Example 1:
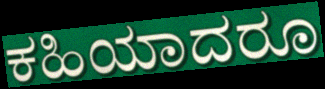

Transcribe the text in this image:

ಕಹಿಯಾದರೂ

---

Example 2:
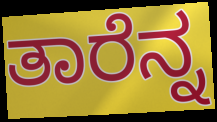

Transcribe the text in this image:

ತಾರೆನ್ನ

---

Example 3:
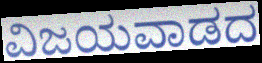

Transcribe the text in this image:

ವಿಜಯವಾಡದ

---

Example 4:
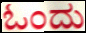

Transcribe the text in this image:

ಓಂದು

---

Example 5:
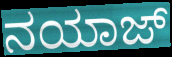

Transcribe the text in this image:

ನಯಾಜ್